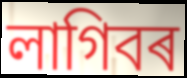
লাগিবৰ